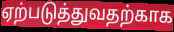
ஏற்படுத்துவதற்காக